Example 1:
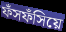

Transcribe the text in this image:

ফঁসফঁসিয়ে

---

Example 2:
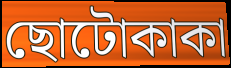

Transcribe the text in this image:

ছোটোকাকা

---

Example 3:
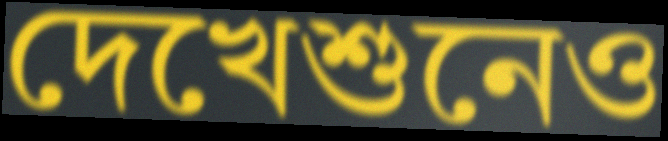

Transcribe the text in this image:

দেখেশুনেও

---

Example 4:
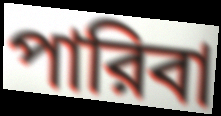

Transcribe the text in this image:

পারিবা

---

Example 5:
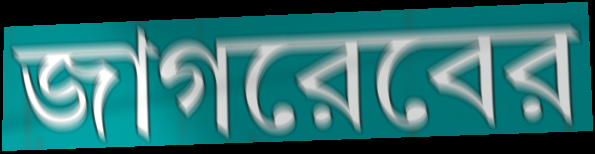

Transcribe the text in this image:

জাগরেবের